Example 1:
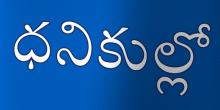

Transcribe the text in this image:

ధనికుల్లో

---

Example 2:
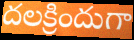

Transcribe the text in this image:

దలక్రిందుగా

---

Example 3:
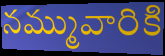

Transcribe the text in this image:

నమ్మువారికి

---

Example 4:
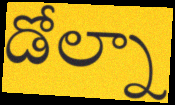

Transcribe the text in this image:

డోల్నా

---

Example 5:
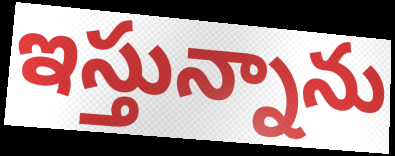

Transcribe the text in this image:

ఇస్తున్నాను